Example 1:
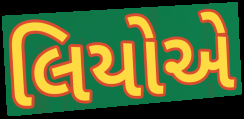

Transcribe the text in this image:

લિયોએ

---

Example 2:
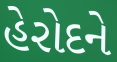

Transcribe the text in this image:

હેરોદને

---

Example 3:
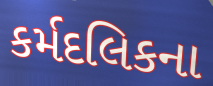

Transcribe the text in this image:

કર્મદલિકના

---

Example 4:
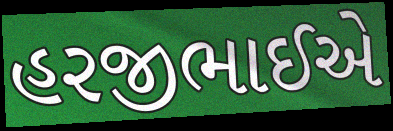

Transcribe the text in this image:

હરજીભાઈએ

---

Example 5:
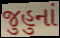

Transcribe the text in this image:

જુહુનાં